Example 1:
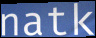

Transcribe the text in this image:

natk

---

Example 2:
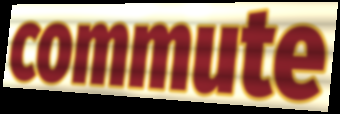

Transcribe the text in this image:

commute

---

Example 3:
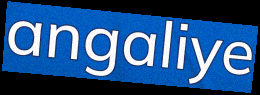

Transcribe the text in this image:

angaliye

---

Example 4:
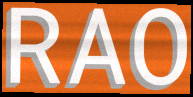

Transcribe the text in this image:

RAO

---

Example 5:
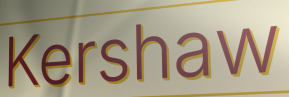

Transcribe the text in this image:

Kershaw